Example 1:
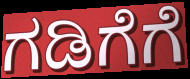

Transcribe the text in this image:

ಗಡಿಗೆಗೆ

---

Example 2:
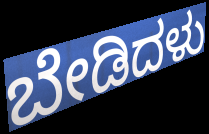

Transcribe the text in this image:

ಬೇಡಿದಳು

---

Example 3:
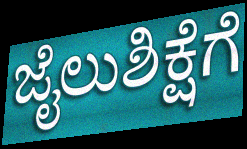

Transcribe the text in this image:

ಜೈಲುಶಿಕ್ಷೆಗೆ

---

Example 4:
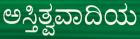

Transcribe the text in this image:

ಅಸ್ತಿತ್ವವಾದಿಯ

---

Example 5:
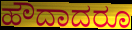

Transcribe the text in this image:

ಹೌದಾದರೂ